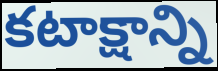
కటాక్షాన్ని